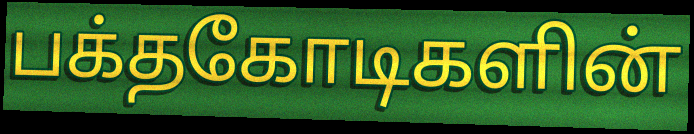
பக்தகோடிகளின்